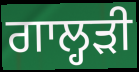
ਗਾਲ੍ਹੜੀ